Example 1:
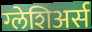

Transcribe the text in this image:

ग्लेशिअर्स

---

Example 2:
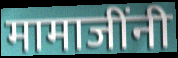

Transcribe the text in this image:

मामाजींनी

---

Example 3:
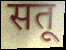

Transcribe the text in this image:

सतू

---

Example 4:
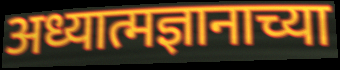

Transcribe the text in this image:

अध्यात्मज्ञानाच्या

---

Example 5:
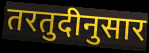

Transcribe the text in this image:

तरतुदीनुसार